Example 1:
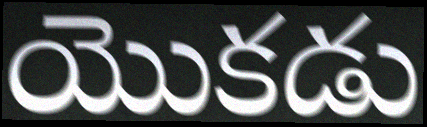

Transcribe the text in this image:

యొకడు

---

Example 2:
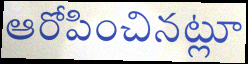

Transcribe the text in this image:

ఆరోపించినట్లూ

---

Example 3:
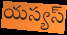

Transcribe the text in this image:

యస్యస్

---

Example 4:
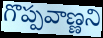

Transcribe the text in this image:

గొప్పవాణ్ణని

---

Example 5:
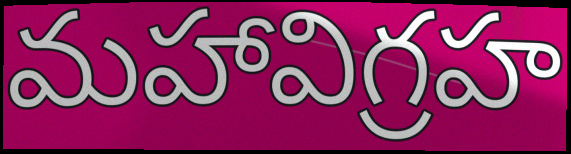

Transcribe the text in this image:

మహావిగ్రహ